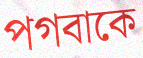
পগবাকে